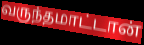
வருந்தமாட்டான்